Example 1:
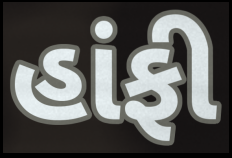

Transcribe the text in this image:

હાંફી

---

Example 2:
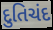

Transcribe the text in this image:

દુતિચંદ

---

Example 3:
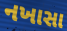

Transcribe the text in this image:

નખાસા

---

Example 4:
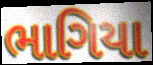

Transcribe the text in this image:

ભાગિયા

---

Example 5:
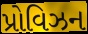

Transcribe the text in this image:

પ્રોવિઝન